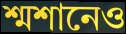
শ্মশানেও